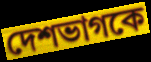
দেশভাগকে